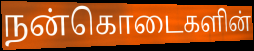
நன்கொடைகளின்